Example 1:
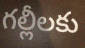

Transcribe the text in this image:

గల్లీలకు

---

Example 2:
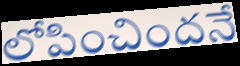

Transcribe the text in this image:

లోపించిందనే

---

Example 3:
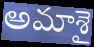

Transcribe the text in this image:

అమాశై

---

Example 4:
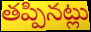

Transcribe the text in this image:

తప్పినట్లు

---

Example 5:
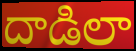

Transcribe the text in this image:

దాడిలా